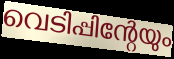
വെടിപ്പിന്റേയും